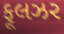
ફૂલઝર